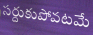
సర్దుకుపోవటమే